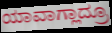
ಯಾವಾಗ್ಲಾದ್ರೂ